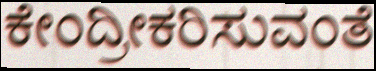
ಕೇಂದ್ರೀಕರಿಸುವಂತೆ